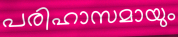
പരിഹാസമായും